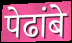
पेढांबे